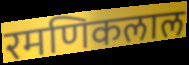
रमणिकलाल